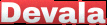
Devala